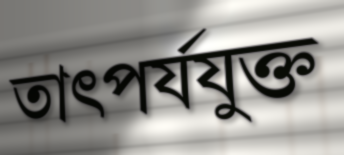
তাৎপর্যযুক্ত